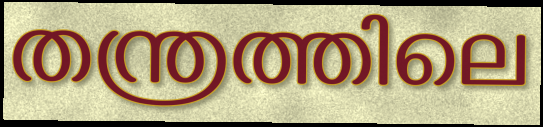
തന്ത്രത്തിലെ